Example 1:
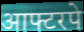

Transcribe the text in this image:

आफ्टरपे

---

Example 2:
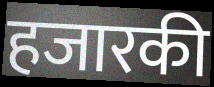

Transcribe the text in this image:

हजारकी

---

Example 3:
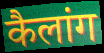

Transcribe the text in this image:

कैलांग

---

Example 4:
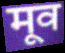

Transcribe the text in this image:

मूव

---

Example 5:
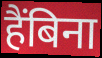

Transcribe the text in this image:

हैंबिना